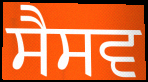
ਸੈਸਵ